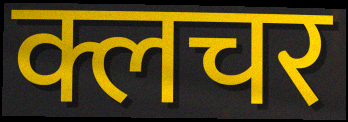
क्लचर